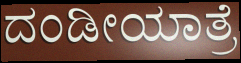
ದಂಡೀಯಾತ್ರೆ